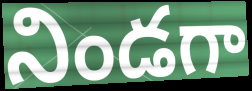
నిండగా